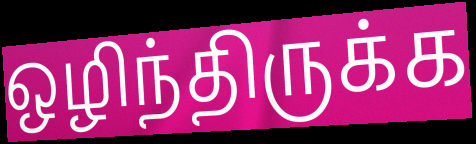
ஒழிந்திருக்க